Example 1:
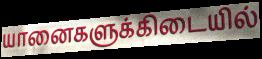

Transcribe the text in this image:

யானைகளுக்கிடையில்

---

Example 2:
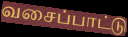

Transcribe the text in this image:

வசைப்பாட்டு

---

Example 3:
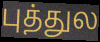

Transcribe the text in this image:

புத்துல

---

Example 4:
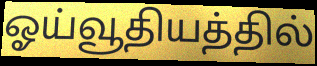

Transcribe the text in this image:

ஓய்வூதியத்தில்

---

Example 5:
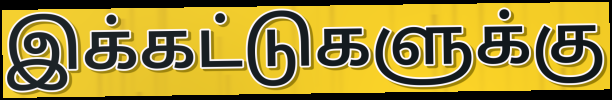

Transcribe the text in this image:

இக்கட்டுகளுக்கு